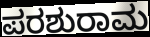
ಪರಶುರಾಮ